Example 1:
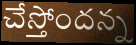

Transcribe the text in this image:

చేస్తోందన్న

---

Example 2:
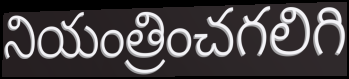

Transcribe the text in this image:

నియంత్రించగలిగి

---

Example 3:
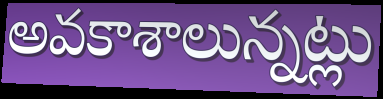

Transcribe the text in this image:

అవకాశాలున్నట్లు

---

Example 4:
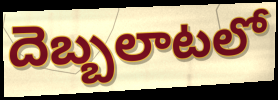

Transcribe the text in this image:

దెబ్బలాటలో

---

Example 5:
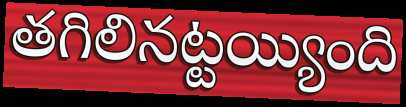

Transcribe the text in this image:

తగిలినట్టయ్యింది